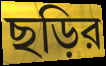
ছড়ির